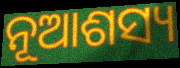
ନୂଆଶସ୍ୟ